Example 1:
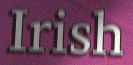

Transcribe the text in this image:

Irish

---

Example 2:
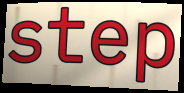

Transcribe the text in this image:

step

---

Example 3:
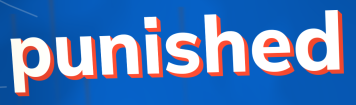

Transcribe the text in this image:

punished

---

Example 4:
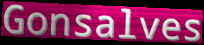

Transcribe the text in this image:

Gonsalves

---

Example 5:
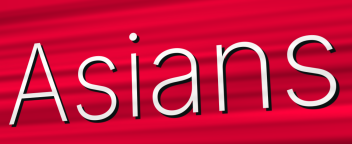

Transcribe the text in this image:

Asians